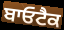
ਬਾਓਟੈਕ